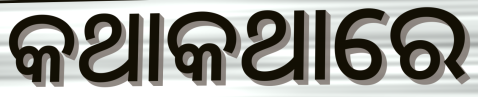
କଥାକଥାରେ